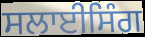
ਸਲਾਈਸਿੰਗ